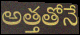
అత్తతోనే